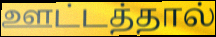
ஊட்டத்தால்